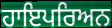
ਹਾਇਪਰਿਅਨ